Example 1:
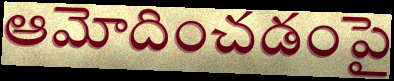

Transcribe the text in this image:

ఆమోదించడంపై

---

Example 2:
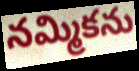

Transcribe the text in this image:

నమ్మికను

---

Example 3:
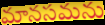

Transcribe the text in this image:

మానసమను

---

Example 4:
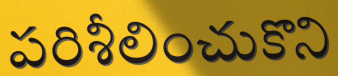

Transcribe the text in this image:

పరిశీలించుకొని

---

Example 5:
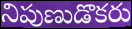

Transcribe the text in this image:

నిపుణుడొకరు